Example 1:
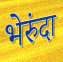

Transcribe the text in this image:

भेरुंदा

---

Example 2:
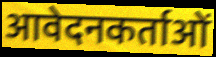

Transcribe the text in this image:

आवेदनकर्ताओं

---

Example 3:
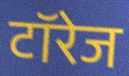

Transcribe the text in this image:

टॉरेज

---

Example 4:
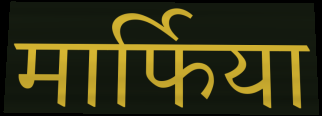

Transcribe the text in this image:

मार्फिया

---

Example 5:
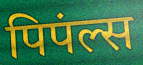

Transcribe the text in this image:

पिपंल्स